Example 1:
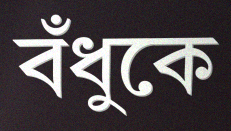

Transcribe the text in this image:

বঁধুকে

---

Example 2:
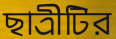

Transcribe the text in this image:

ছাত্রীটির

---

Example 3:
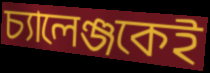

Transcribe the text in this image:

চ্যালেঞ্জকেই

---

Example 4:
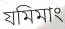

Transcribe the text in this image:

যমিমাং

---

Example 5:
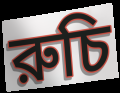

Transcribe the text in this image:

রুচি